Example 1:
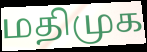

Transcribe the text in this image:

மதிமுக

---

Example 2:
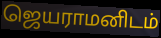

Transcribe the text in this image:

ஜெயராமனிடம்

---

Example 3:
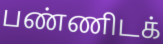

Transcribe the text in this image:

பண்ணிடக்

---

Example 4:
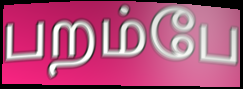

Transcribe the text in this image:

பறம்பே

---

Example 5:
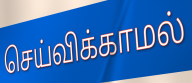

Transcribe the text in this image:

செய்விக்காமல்